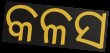
କଳସ